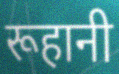
रूहानी